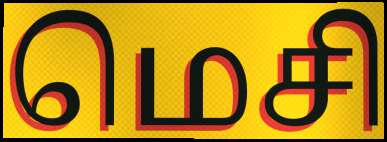
மெசி